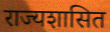
राज्यशासित